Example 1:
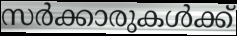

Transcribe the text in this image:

സർക്കാരുകൾക്ക്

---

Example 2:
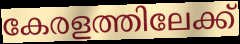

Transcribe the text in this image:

കേരളത്തിലേക്ക്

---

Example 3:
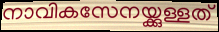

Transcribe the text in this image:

നാവികസേനയ്ക്കുള്ളത്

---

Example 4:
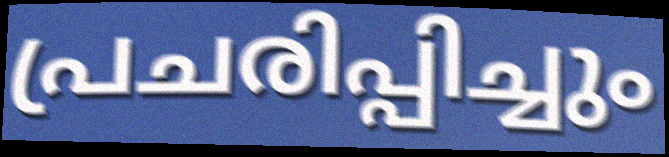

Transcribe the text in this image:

പ്രചരിപ്പിച്ചും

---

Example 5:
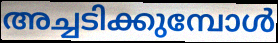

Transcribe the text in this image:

അച്ചടിക്കുമ്പോൾ